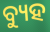
ବ୍ୟୁହ